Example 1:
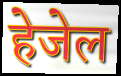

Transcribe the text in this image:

हेजेल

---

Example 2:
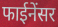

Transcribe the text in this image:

फाईनेंसर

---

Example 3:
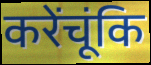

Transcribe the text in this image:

करेंचूंकि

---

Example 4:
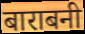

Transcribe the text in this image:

बाराबनी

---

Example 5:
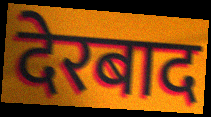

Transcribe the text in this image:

देरबाद